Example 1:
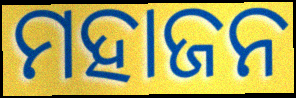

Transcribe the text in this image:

ମହାଜନ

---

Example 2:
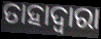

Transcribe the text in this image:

ତାହାଦ୍ଵାରା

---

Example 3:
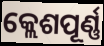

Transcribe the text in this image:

କ୍ଲେଶପୂର୍ଣ୍ଣ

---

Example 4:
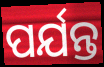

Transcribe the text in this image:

ପର୍ଯନ୍ତ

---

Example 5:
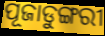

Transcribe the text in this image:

ପୂଜାଡୁଙ୍ଗରୀ